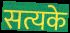
सत्यके